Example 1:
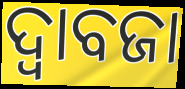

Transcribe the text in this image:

ଦ୍ୱାବଜା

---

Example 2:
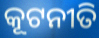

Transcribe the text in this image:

କୂଟନୀତି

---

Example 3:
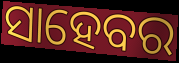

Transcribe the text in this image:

ସାହେବର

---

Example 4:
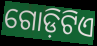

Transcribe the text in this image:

ଗୋଡ଼ିଟିଏ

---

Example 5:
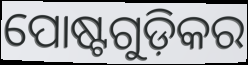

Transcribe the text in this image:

ପୋଷ୍ଟଗୁଡ଼ିକର